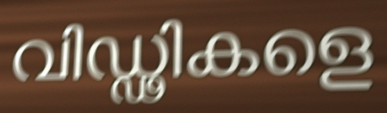
വിഡ്ഢികളെ